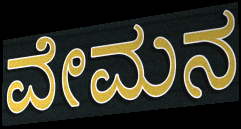
ವೇಮನ